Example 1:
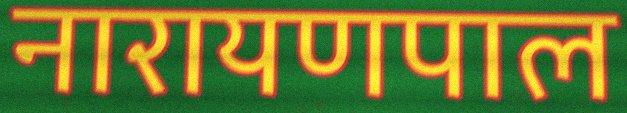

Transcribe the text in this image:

नारायणपाल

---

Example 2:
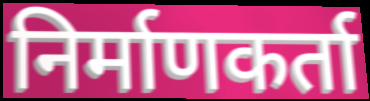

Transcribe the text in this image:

निर्माणकर्ता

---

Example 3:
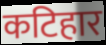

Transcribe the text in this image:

कटिहार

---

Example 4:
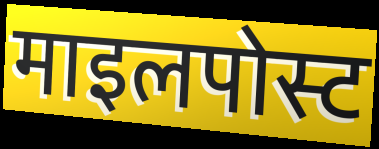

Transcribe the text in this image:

माइलपोस्ट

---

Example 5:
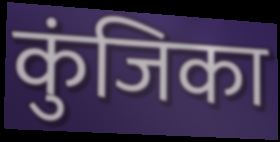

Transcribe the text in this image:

कुंजिका